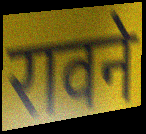
रावने